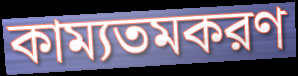
কাম্যতমকরণ